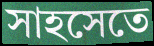
সাহসেতে